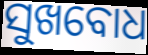
ସୁଖବୋଧ